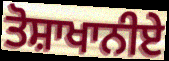
ਤੋਸ਼ਾਖਾਨੀਏ